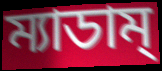
ম্যাডাম্